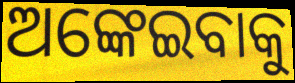
ଅଙ୍କେଇବାକୁ